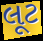
લૂટ